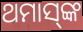
ଥମାସ୍‌ଙ୍କ